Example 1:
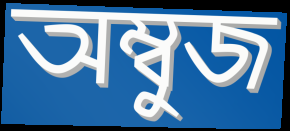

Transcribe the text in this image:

অম্বুজ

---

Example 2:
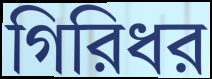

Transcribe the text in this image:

গিরিধর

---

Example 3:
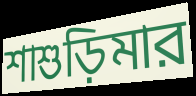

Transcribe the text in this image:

শাশুড়িমার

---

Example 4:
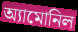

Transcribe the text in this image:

অ্যামোনিল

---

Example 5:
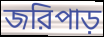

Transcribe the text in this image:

জরিপাড়